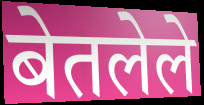
बेतलेले